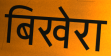
बिखेरा